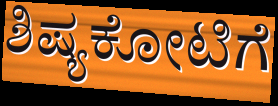
ಶಿಷ್ಯಕೋಟಿಗೆ